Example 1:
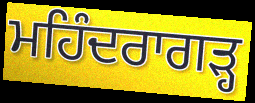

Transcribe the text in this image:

ਮਹਿੰਦਰਾਗੜ੍ਹ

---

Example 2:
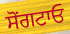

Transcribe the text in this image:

ਸੋਂਗਟਾਓ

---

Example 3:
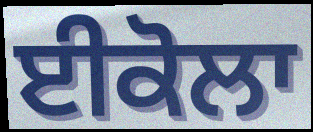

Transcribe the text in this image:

ਈਕੋਲਾ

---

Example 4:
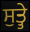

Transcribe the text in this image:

ਸੁਤ੍ਤੇ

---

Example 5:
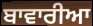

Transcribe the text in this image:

ਬਾਵਾਰੀਆ